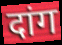
दांग